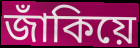
জাঁকিয়ে